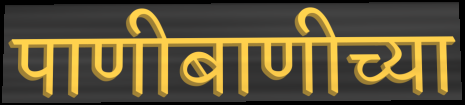
पाणीबाणीच्या